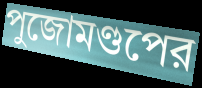
পুজোমণ্ডপের